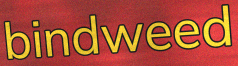
bindweed